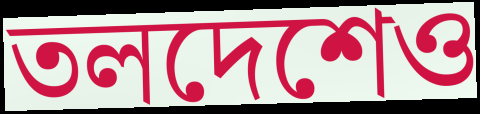
তলদেশেও